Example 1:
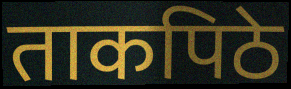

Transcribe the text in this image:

ताकपिठे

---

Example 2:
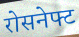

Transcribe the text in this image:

रोसनेफ्ट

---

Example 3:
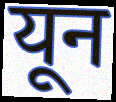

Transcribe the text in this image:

यून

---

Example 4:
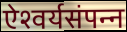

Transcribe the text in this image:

ऐश्वर्यसंपन्न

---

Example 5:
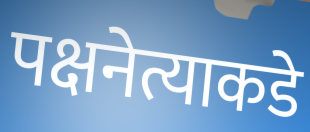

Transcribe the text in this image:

पक्षनेत्याकडे